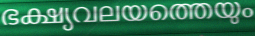
ഭക്ഷ്യവലയത്തെയും